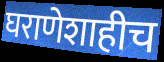
घराणेशाहीच